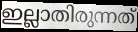
ഇല്ലാതിരുന്നത്